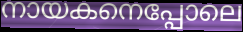
നായകനെപ്പോലെ